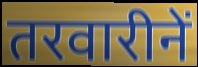
तरवारीनें